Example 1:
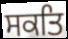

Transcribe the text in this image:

ਸਕਤਿ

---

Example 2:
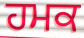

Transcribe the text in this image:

ਹਮਕ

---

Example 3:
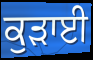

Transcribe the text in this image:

ਕੁੜਾਈ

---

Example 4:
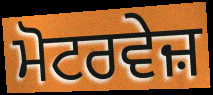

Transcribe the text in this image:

ਮੋਟਰਵੇਜ਼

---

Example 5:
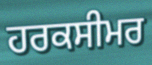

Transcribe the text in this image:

ਹਰਕਸੀਮਰ